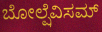
ಬೋಲ್ಷೆವಿಸಮ್